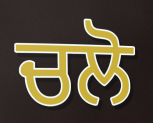
ਚਲੋ